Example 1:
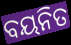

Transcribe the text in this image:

ବୟନିତ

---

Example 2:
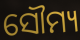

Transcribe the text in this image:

ସୌମ୍ଯ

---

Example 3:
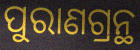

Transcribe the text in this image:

ପୁରାଣଗ୍ରନ୍ଥ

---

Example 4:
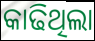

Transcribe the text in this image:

କାଢିଥିଲା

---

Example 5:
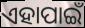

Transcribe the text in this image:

ଏହାପାଇଁ